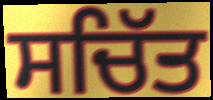
ਸਚਿੱਤ